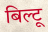
बिल्टू